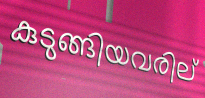
കുടുങ്ങിയവരില്